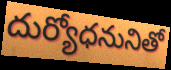
దుర్యోధనునితో